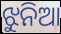
ଝୁନିଆ